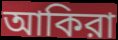
আকিরা